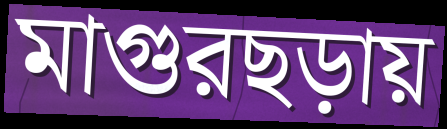
মাগুরছড়ায়